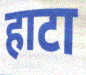
हाटा